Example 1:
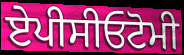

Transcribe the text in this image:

ਏਪੀਸੀਓਟੋਮੀ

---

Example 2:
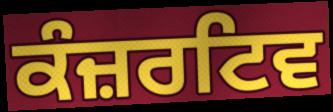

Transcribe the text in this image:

ਕੰਜ਼ਰਟਿਵ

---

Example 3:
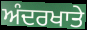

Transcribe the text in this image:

ਅੰਦਰਖਾਤੇ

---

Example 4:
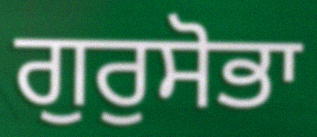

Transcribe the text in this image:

ਗੁਰੁਸੋਭਾ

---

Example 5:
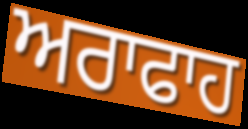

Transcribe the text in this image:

ਅਰਾਫਾਹ